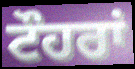
ਟੌਹਰਾਂ